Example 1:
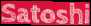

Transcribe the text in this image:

Satoshi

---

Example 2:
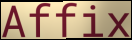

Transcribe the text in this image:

Affix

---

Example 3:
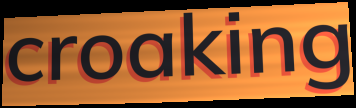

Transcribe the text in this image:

croaking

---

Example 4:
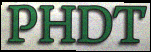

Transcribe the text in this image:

PHDT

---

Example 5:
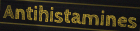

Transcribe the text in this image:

Antihistamines